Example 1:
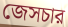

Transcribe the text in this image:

জেসচার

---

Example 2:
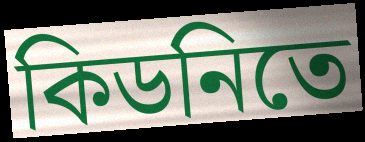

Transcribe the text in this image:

কিডনিতে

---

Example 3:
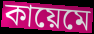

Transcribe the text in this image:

কায়েমে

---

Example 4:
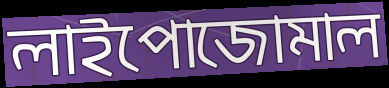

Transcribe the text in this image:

লাইপোজোমাল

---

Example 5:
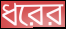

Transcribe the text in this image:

ধরের